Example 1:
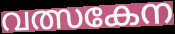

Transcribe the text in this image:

വത്സകേന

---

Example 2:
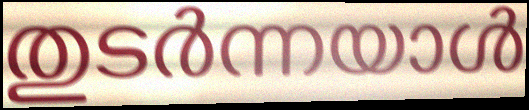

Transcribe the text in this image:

തുടർന്നയാൾ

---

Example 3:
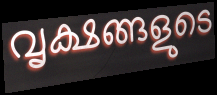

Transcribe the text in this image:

വൃക്ഷങ്ങളുടെ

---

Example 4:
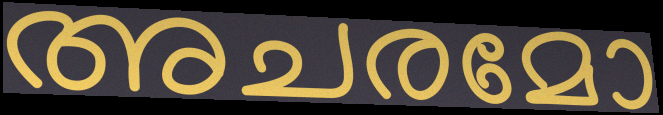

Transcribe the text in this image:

അചരമോ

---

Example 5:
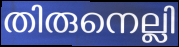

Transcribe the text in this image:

തിരുനെല്ലി